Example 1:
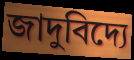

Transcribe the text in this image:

জাদুবিদ্যে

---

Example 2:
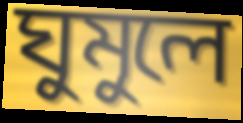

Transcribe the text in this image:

ঘুমুলে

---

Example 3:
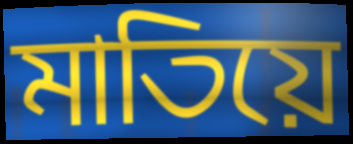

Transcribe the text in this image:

মাতিয়ে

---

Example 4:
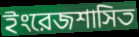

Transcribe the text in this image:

ইংরেজশাসিত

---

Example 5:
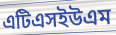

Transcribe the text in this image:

এটিএসইউএম